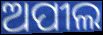
ଅପୀଲ